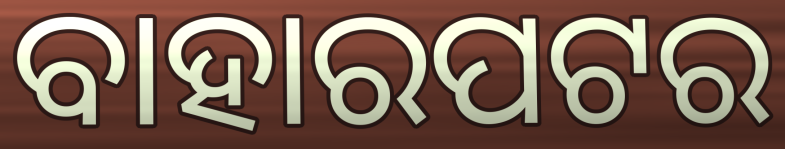
ବାହାରପଟର